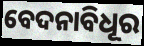
ବେଦନାବିଧୂର